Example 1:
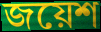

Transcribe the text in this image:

জয়েশ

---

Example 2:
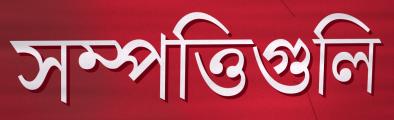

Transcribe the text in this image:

সম্পত্তিগুলি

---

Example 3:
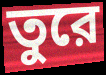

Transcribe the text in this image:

তুরে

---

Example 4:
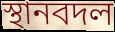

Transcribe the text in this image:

স্থানবদল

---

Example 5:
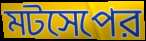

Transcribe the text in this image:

মটসেপের